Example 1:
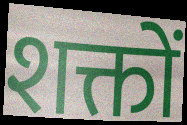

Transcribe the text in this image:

शक्तों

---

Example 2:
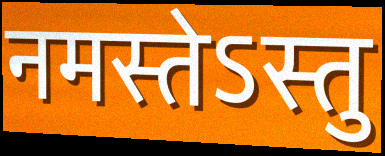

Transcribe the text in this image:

नमस्तेऽस्तु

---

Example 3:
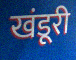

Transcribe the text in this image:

खंडूरी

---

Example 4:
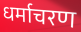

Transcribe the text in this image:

धर्माचरण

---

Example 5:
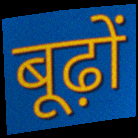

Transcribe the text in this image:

बूढ़ों